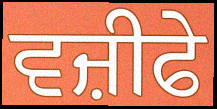
ਵਜ਼ੀਫੇ